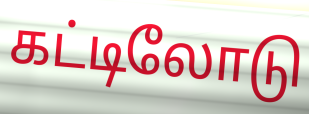
கட்டிலோடு